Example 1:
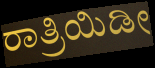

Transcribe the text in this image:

ರಾತ್ರಿಯಿಡೀ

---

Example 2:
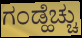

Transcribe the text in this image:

ಗಂಡ್ಹೆಚ್ಚು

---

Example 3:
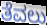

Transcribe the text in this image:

ತೆವಲು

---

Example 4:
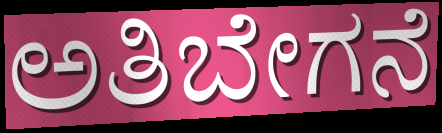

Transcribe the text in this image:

ಅತಿಬೇಗನೆ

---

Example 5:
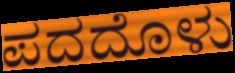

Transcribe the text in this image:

ಪದದೊಳು